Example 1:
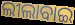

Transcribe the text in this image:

ଲୀଲାବାଇ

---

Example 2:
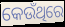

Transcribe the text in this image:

କେଉଁଥିରେ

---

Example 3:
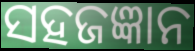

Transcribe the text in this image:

ସହଜଜ୍ଞାନ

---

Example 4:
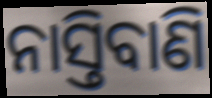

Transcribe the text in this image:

ନାସ୍ତିବାଣି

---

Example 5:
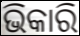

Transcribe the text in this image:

ଭିକାରି